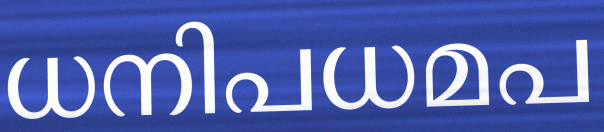
ധനിപധമപ